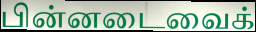
பின்னடைவைக்